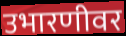
उभारणीवर